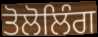
ਤੋਲੋਲਿੰਗ